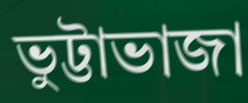
ভুট্টাভাজা